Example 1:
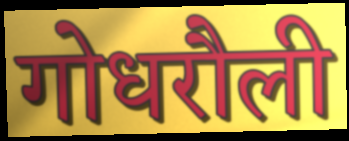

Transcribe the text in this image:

गोधरौली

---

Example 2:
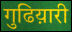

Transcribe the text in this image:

गुढिय़ारी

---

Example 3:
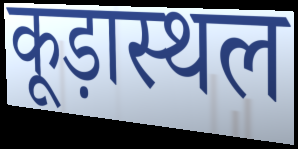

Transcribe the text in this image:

कूड़ास्थल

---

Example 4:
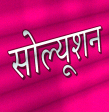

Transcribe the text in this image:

सोल्यूशन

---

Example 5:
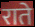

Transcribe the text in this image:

राते